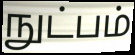
நுட்பம்